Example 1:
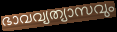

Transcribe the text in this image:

ഭാവവ്യത്യാസവും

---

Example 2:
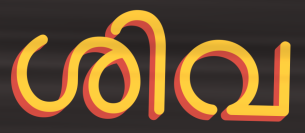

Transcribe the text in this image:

ശിവ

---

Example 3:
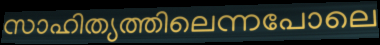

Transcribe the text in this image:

സാഹിത്യത്തിലെന്നപോലെ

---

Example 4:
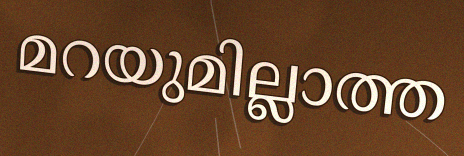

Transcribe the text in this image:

മറയുമില്ലാത്ത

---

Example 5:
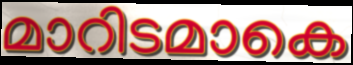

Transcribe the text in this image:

മാറിടമാകെ